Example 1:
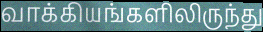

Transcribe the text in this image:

வாக்கியங்களிலிருந்து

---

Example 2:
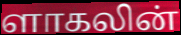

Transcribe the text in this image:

ளாகலின்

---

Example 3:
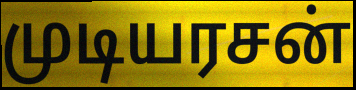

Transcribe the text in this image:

முடியரசன்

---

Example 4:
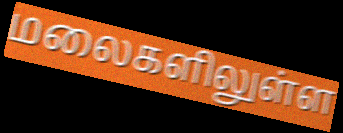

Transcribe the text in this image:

மலைகளிலுள்ள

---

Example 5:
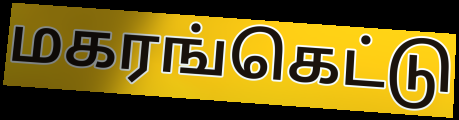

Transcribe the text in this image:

மகரங்கெட்டு